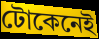
টোকেনেই